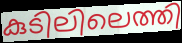
കുടിലിലെത്തി